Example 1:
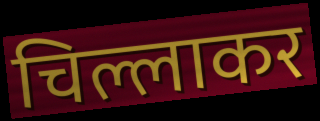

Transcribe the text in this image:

चिल्‍लाकर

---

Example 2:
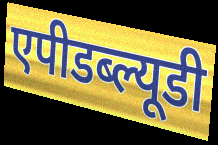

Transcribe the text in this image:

एपीडब्ल्यूडी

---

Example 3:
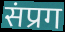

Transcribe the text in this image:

संप्रग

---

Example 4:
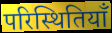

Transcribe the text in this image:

परिस्थितियाँ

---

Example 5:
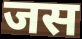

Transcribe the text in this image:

जस